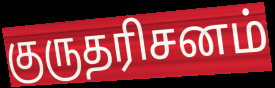
குருதரிசனம்